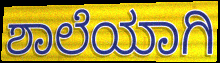
ಶಾಲೆಯಾಗಿ